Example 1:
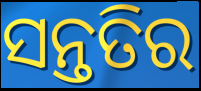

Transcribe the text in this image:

ସନ୍ତତିର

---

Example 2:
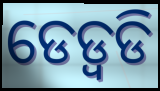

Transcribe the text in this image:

ଡେଡ୍ବଡି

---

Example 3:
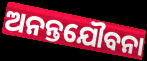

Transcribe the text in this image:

ଅନନ୍ତଯୌବନା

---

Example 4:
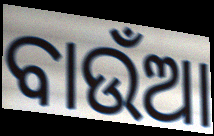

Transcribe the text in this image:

ବାଉଁଆ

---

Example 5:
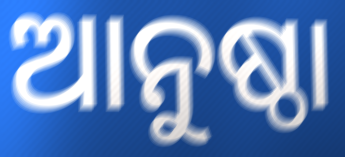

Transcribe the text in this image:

ଆନୁଷ୍ଠା